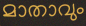
മാതാവും